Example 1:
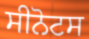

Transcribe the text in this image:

ਸੀਨੋਟਸ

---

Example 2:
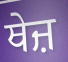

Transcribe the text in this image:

ਥੇਜ਼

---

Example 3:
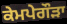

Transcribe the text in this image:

ਕੇਮਪੇਗੌੜਾ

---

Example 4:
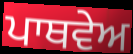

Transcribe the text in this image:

ਪਾਥਵੇਅ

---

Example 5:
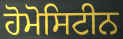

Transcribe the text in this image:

ਹੋਮੋਸਿਟੀਨ